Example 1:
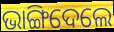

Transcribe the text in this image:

ଭାଙ୍ଗିଦେଲେ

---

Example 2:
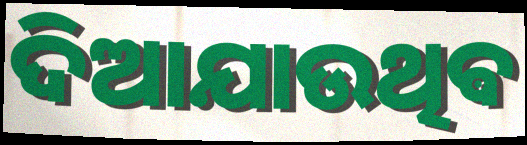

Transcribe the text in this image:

ଦିଆଯାଉଥିଵ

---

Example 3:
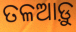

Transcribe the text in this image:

ତଳଆଡ଼ୁ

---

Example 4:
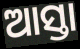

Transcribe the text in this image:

ଆସ୍ତା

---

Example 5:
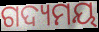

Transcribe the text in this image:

ଗଦ୍ୟମୟ